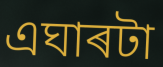
এঘাৰটা